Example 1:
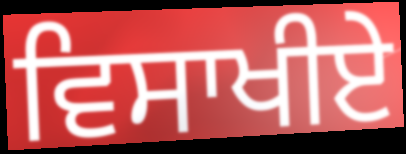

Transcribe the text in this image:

ਵਿਸਾਖੀਏੇ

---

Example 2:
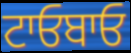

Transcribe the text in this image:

ਟਾਓਬਾਓ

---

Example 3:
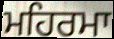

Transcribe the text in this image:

ਮਹਿਰਮਾ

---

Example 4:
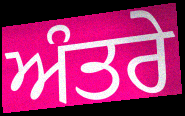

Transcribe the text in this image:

ਅੰਤਰੇ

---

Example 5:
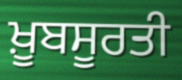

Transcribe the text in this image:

ਖ਼ੂਬਸੂਰਤੀ